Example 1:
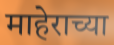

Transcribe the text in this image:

माहेराच्या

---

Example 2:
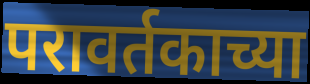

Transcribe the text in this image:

परावर्तकाच्या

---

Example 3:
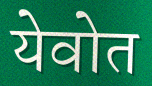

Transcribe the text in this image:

येवोत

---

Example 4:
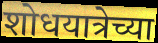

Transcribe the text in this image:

शोधयात्रेच्या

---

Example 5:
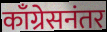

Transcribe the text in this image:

काँग्रेसनंतर